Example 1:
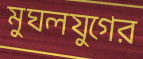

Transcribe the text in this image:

মুঘলযুগের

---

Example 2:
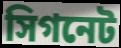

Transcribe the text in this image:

সিগনেট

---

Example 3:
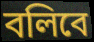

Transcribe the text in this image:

বলিবে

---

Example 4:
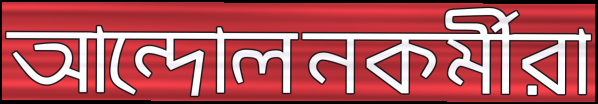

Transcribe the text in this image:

আন্দোলনকর্মীরা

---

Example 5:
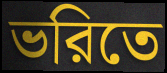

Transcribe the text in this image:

ভরিতে